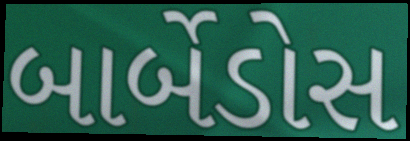
બાર્બેડોસ